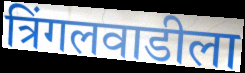
त्रिंगलवाडीला